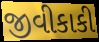
જીવીકાકી